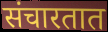
संचारतात